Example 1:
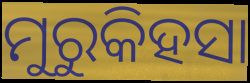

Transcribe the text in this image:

ମୁରୁକିହସା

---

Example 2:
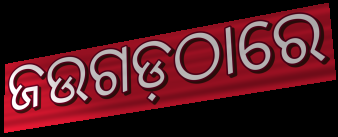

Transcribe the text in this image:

ଜଉଗଡ଼ଠାରେ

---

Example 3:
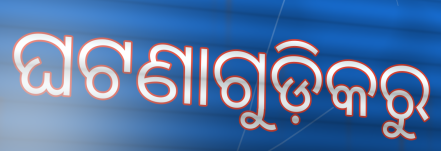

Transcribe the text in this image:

ଘଟଣାଗୁଡ଼ିକରୁ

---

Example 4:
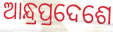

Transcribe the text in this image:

ଆନ୍ଧ୍ରପ୍ରଦେଶେ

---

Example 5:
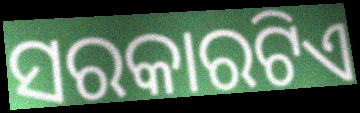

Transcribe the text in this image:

ସରକାରଟିଏ